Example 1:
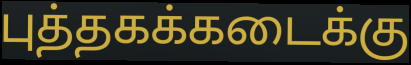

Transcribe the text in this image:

புத்தகக்கடைக்கு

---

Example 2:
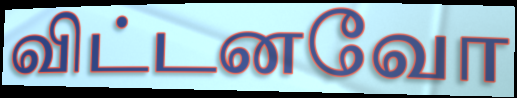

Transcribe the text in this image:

விட்டனவோ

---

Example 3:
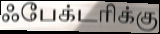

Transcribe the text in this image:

ஃபேக்டரிக்கு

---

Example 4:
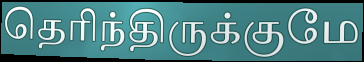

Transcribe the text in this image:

தெரிந்திருக்குமே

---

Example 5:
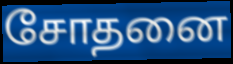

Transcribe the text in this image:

சோதனை